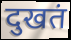
दुखतं